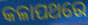
କଳାପଥରେ